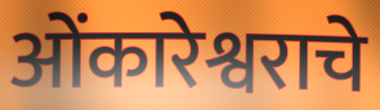
ओंकारेश्वराचे